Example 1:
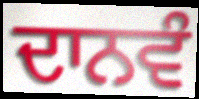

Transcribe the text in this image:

ਦਾਨਵੰ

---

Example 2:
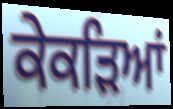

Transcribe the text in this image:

ਕੇਕੜਿਆਂ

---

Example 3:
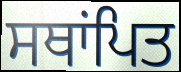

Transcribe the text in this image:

ਸਥਾਂਪਿਤ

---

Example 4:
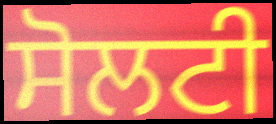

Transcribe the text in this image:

ਸੋਲਟੀ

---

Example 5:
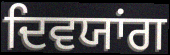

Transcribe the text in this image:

ਦਿਵਯਾਂਗ